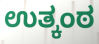
ಉತ್ಕಂಠ